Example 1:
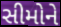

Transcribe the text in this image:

સીમોને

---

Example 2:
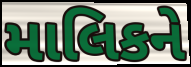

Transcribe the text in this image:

માલિકને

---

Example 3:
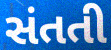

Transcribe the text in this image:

સંતતી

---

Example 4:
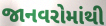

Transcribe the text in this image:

જાનવરોમાંથી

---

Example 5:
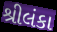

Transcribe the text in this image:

શ્રીલંકા